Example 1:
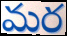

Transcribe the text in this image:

మర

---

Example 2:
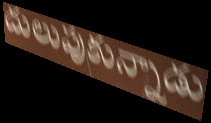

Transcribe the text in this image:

దులుపుకున్నాడు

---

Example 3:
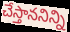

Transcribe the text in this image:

చేస్తాననిన్ని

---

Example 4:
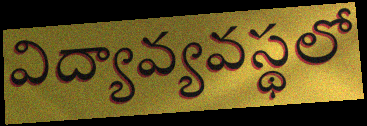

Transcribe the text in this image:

విద్యావ్యవస్థలో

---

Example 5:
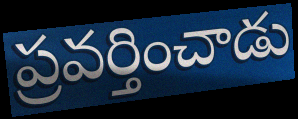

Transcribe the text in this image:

ప్రవర్తించాడు